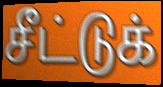
சீட்டுக்